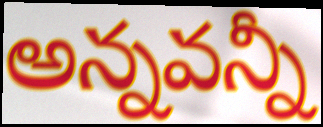
అన్నవన్నీ